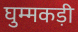
घुम्मकड़ी